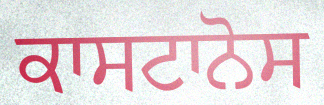
ਕਾਸਟਾਨੋਸ